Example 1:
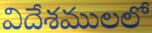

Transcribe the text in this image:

విదేశములలో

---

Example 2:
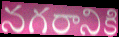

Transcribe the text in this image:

నగరానికి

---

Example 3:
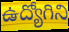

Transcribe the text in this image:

ఉద్యోగిని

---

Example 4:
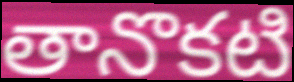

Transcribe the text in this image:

తానొకటి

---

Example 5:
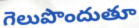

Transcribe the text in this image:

గెలుపొందుతూ